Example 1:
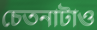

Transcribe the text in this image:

চেতনাটাও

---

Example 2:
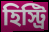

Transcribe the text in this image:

হিস্ট্রি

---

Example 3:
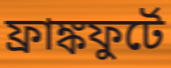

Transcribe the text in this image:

ফ্রাঙ্কফুর্টে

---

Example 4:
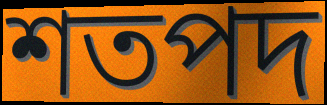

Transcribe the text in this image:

শতপদ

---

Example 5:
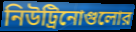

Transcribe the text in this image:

নিউট্রিনোগুলোর